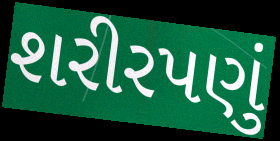
શરીરપણું